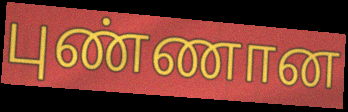
புண்ணான